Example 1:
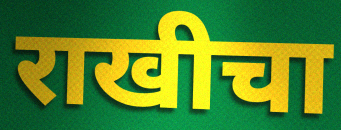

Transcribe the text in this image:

राखीचा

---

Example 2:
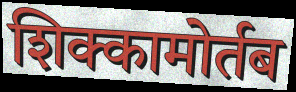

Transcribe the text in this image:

शिक्कामोर्तब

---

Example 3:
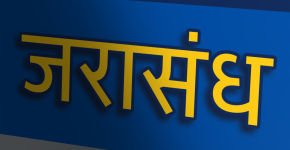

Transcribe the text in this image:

जरासंध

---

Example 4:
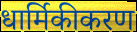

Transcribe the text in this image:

धार्मिकीकरण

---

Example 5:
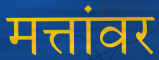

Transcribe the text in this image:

मत्तांवर